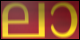
ലാ